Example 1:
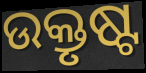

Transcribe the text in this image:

ଉକ୍ତୃଷ୍ଟ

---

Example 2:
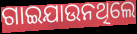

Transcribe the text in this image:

ଗାଇଯାଉନଥିଲେ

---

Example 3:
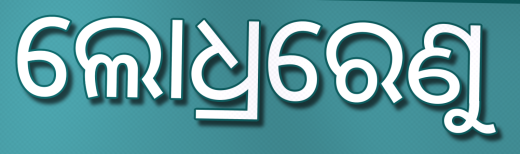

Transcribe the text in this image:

ଲୋଧ୍ରରେଣୁ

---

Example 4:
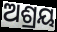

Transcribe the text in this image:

ଅଶ୍ରୟ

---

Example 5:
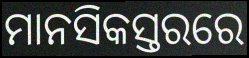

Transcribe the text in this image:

ମାନସିକସ୍ତରରେ